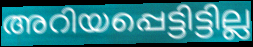
അറിയപ്പെട്ടിട്ടില്ല